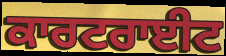
ਕਾਰਟਰਾਈਟ